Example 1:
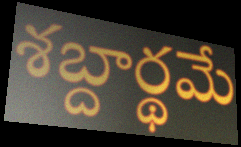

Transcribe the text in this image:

శబ్దార్థమే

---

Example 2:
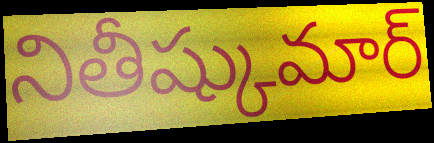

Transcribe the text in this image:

నితీష్కుమార్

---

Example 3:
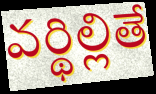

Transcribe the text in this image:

వర్థిల్లితే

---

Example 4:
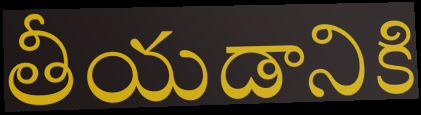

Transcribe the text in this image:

తీయడానికి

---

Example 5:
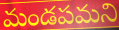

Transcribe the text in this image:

మండపమని